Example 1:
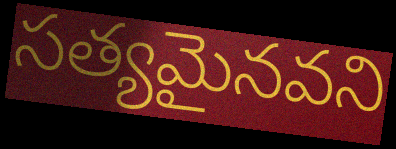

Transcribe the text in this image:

సత్యమైనవని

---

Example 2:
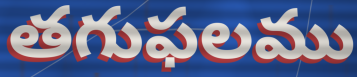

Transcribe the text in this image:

తగుఫలము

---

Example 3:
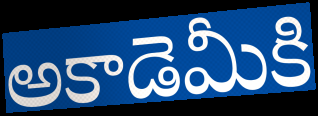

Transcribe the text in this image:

అకాడెమీకి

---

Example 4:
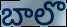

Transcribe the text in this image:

బాలొ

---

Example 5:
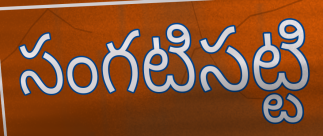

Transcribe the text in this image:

సంగటిసట్టి